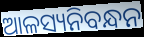
ଆଳସ୍ୟନିବନ୍ଧନ